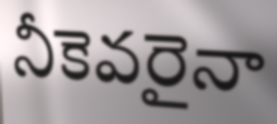
నీకెవరైనా